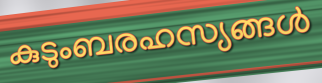
കുടുംബരഹസ്യങ്ങൾ